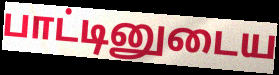
பாட்டினுடைய